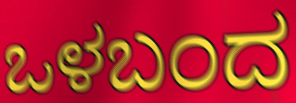
ಒಳಬಂದ